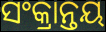
ସଂକ୍ରାନ୍ତୟ